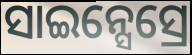
ସାଇନ୍ସେସ୍ରେ